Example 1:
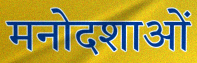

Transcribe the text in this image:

मनोदशाओं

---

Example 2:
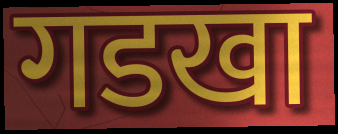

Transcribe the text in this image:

गडखा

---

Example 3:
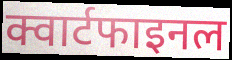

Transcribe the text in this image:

क्वार्टफाइनल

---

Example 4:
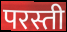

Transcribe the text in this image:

परस्ती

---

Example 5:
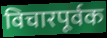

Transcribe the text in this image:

विचारपूर्वक